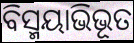
ବିସ୍ମୟାଭିଭୂତ